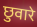
छुवारे